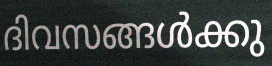
ദിവസങ്ങൾക്കു